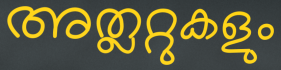
അത്ലറ്റുകളും